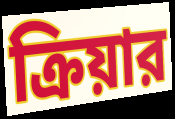
ক্রিয়ার